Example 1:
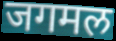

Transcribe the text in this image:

जगमल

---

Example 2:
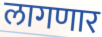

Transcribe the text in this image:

लागणार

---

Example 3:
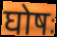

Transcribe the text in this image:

घोषः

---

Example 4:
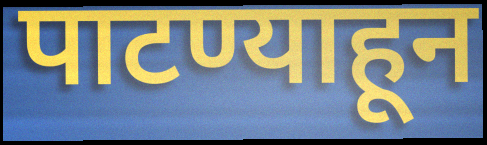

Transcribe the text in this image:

पाटण्याहून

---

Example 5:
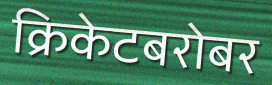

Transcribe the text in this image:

क्रिकेटबरोबर